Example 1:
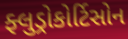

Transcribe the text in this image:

ફ્લુડ્રોકોર્ટિસોન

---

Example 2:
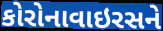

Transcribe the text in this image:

કોરોનાવાઇરસને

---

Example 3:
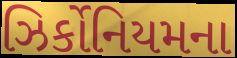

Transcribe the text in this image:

ઝિર્કોનિયમના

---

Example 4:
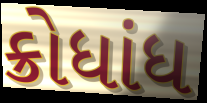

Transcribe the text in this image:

ક્રોધાંધ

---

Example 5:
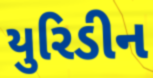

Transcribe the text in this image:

યુરિડીન